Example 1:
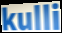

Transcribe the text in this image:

kulli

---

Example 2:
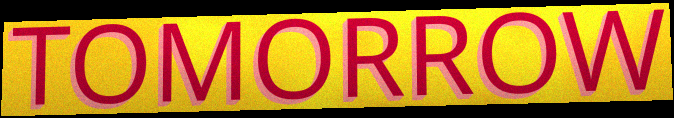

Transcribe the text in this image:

TOMORROW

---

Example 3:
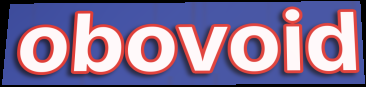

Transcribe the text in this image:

obovoid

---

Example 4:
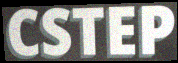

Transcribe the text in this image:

CSTEP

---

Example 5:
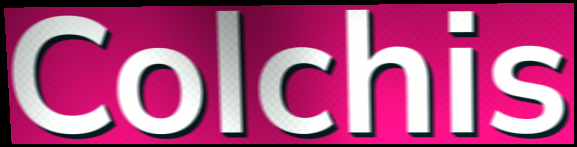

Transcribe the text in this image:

Colchis